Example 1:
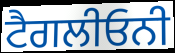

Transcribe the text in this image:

ਟੈਗਲੀਓਨੀ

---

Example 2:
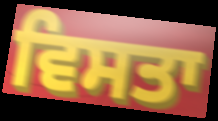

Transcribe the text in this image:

ਵਿਸਤਾ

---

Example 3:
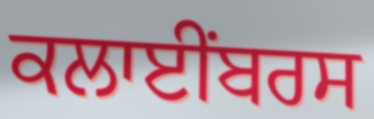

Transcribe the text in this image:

ਕਲਾਈਂਬਰਸ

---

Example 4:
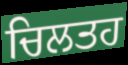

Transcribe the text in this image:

ਚਿਲਤਹ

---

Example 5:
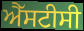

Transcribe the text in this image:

ਐੱਸਟੀਸੀ